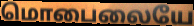
மொபைலையே